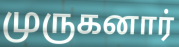
முருகனார்